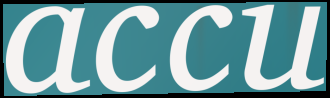
accu